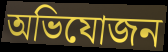
অভিযোজন